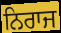
ਨਿਰਾਜ